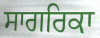
ਸਾਗਰਿਕਾ